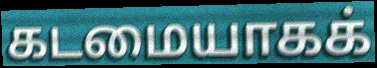
கடமையாகக்